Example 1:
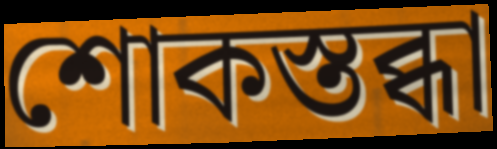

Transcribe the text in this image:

শোকস্তব্ধা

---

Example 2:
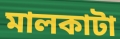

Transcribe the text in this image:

মালকাটা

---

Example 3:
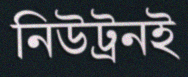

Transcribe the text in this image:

নিউট্রনই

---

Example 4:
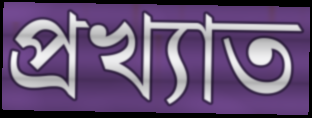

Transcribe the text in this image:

প্রখ্যাত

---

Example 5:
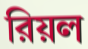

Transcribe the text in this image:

রিয়ল